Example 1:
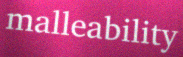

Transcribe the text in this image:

malleability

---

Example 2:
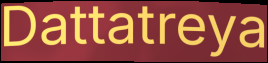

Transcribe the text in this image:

Dattatreya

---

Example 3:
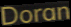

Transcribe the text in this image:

Doran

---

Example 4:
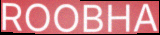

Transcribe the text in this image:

ROOBHA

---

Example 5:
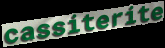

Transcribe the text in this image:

cassiterite